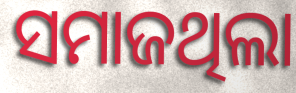
ସମାଜଥିଲା